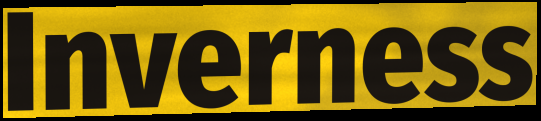
Inverness